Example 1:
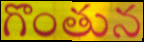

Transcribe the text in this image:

గొంతున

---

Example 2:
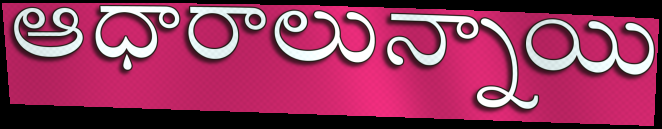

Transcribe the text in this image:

ఆధారాలున్నాయి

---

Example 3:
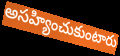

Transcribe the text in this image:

అసహ్యించుకుంటారు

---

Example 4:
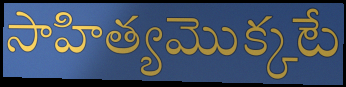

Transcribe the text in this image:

సాహిత్యమొక్కటే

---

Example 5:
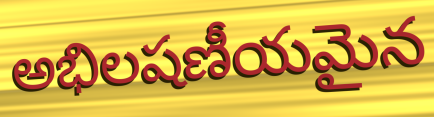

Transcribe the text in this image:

అభిలషణీయమైన